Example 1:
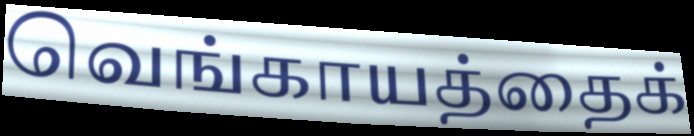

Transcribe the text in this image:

வெங்காயத்தைக்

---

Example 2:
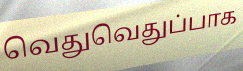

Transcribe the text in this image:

வெதுவெதுப்பாக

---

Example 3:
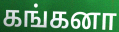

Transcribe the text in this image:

கங்கனா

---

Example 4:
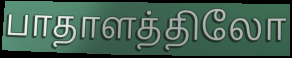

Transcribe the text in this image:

பாதாளத்திலோ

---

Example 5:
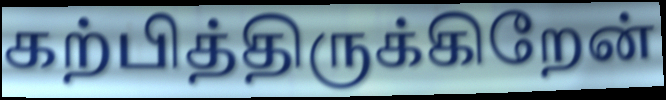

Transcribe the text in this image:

கற்பித்திருக்கிறேன்